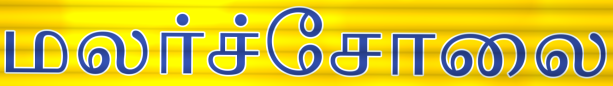
மலர்ச்சோலை